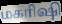
மகரிஷி